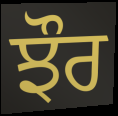
ਝੌਰ